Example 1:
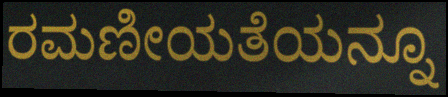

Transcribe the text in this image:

ರಮಣೀಯತೆಯನ್ನೂ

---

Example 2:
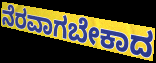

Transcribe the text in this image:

ನೆರವಾಗಬೇಕಾದ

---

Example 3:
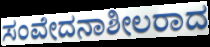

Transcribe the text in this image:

ಸಂವೇದನಾಶೀಲರಾದ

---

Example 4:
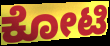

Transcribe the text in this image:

ಕೋಟಿ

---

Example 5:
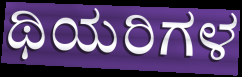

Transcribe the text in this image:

ಥಿಯರಿಗಳ